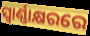
ସ୍ୱାର୍ଣ୍ଣାକ୍ଷରରେ